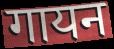
गायन